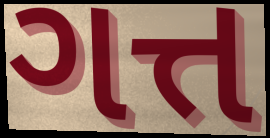
ગત્ત